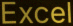
Excel